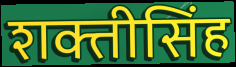
शक्तीसिंह